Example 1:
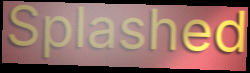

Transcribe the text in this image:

Splashed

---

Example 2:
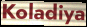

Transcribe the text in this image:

Koladiya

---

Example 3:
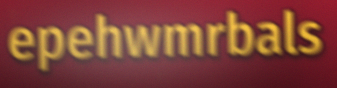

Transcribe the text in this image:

epehwmrbals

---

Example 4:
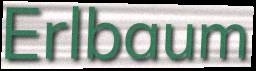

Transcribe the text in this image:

Erlbaum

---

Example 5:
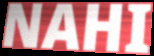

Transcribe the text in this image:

NAHI